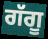
ਗੱਗੂ